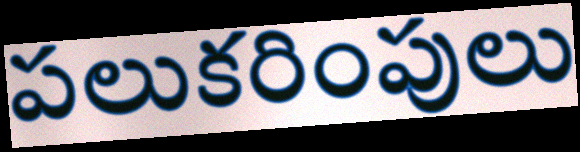
పలుకరింపులు